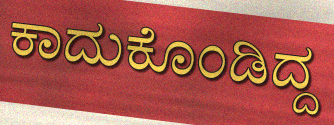
ಕಾದುಕೊಂಡಿದ್ದ